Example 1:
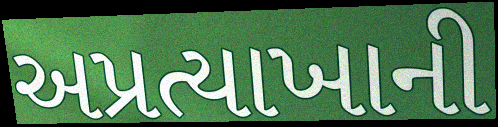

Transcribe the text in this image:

અપ્રત્યાખાની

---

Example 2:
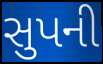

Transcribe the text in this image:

સુપની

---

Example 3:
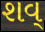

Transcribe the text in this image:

શવ્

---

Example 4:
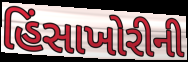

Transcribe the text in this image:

હિંસાખોરીની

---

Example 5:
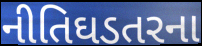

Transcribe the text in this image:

નીતિઘડતરના